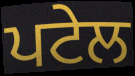
ਪਟੇਲ